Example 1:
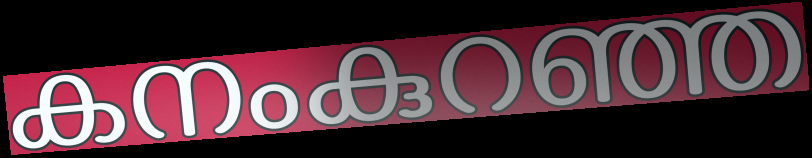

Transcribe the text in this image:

കനംകുറഞ്ഞ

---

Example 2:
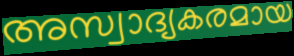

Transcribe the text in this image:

അസ്വാദ്യകരമായ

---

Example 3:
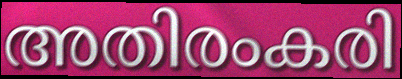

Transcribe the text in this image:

അതിരംകരി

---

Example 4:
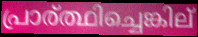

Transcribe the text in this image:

പ്രാര്ത്ഥിച്ചെങ്കില്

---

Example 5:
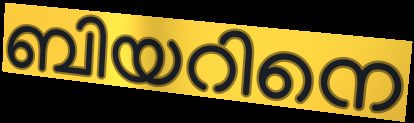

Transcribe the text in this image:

ബിയറിനെ